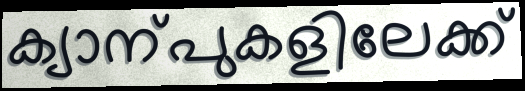
ക്യാന്പുകളിലേക്ക്